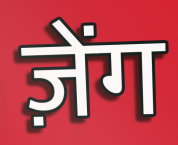
ज़ेंग